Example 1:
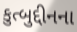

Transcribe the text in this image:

કુત્બુદ્દીનના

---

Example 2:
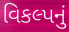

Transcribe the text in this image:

વિકલ્પનું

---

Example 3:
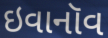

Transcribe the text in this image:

ઇવાનૉવ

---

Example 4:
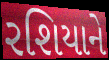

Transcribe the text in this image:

રશિયાને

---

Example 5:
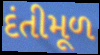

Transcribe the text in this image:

દંતીમૂળ